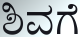
ಶಿವಗೆ